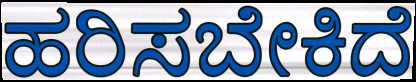
ಹರಿಸಬೇಕಿದೆ